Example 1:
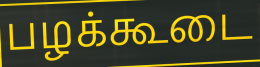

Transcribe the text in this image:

பழக்கூடை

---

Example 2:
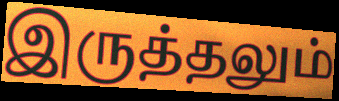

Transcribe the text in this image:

இருத்தலும்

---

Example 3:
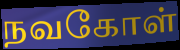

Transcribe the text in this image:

நவகோள்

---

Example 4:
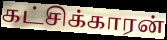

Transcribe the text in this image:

கட்சிக்காரன்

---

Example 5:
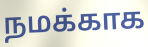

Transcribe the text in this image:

நமக்காக